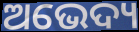
ଅଭେଦ୍ୟ